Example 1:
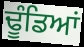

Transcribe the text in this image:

ਢੂੰਡਿਆਂ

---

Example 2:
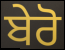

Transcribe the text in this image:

ਬੇਰੋ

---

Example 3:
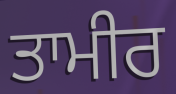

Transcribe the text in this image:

ਤਾਮੀਰ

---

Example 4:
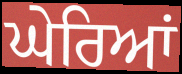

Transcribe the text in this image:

ਘੇਰਿਆਂ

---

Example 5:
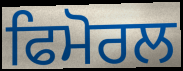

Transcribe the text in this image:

ਫਿਮੋਰਲ